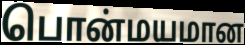
பொன்மயமான